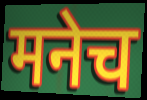
मनेच